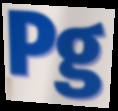
Pg